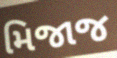
મિજાજ